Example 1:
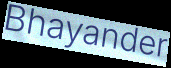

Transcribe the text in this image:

Bhayander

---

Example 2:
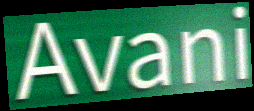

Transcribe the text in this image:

Avani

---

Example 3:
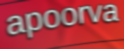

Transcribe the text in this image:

apoorva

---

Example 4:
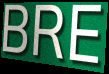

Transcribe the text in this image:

BRE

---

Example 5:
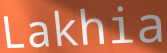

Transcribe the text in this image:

Lakhia